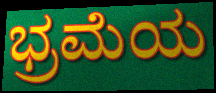
ಭ್ರಮೆಯ